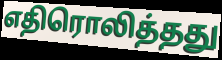
எதிரொலித்தது